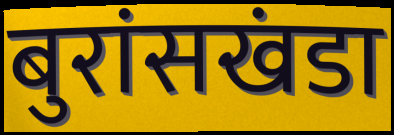
बुरांसखंडा